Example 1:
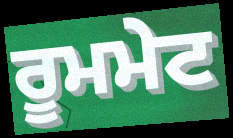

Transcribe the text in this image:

ਰੂਮਮੇਟ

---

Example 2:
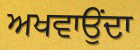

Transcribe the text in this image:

ਅਖਵਾਉਂਦਾ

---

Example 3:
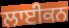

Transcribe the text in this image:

ਲਾਈਕਨ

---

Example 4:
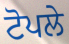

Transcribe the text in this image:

ਟੋਪਲੇ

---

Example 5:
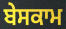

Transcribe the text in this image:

ਬੇਸਕਾਮ